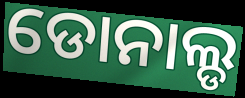
ଡୋନାଲ୍ଡ